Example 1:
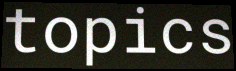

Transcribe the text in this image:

topics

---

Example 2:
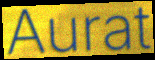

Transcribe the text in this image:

Aurat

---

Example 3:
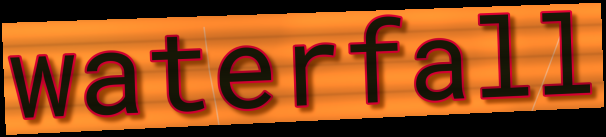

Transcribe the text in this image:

waterfall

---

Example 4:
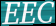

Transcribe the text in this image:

EEC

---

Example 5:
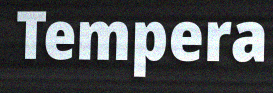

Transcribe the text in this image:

Tempera